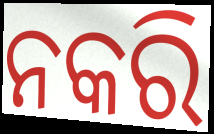
ନକରି